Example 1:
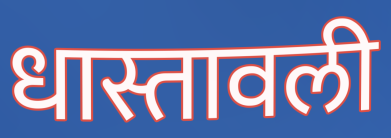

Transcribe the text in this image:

धास्तावली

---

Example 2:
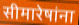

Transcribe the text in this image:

सीमारेषांना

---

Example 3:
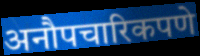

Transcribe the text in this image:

अनौपचारिकपणे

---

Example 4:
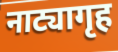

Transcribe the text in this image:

नाट्यागृह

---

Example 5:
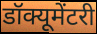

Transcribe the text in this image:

डॉक्यूमेंटरी